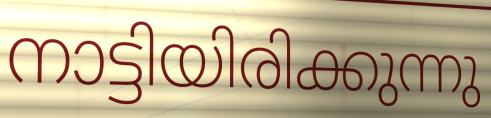
നാട്ടിയിരിക്കുന്നു